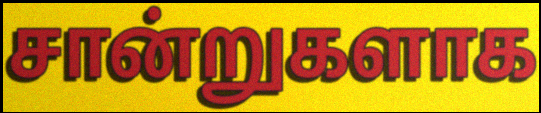
சான்றுகளாக